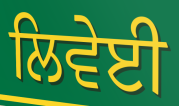
ਲਿਵੇਈ